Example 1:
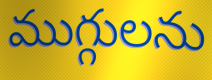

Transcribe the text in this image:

ముగ్గులను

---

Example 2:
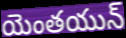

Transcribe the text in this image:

యెంతయున్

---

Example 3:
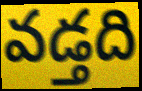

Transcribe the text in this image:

వడ్తది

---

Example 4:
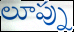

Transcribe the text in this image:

లూప్ను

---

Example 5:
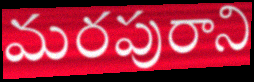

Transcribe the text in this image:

మరపురాని